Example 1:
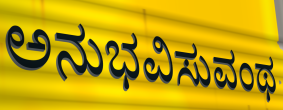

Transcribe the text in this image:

ಅನುಭವಿಸುವಂಥ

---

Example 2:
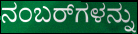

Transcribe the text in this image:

ನಂಬರ್‌ಗಳನ್ನು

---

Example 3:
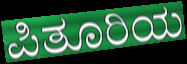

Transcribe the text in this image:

ಪಿತೂರಿಯ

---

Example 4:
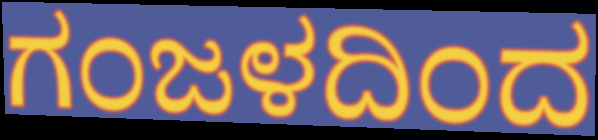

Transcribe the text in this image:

ಗಂಜಳದಿಂದ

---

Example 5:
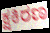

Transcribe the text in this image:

ಕ್ಷಕಿರಣ